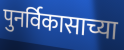
पुनर्विकासाच्या